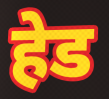
हेड